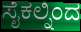
ಸೈಕಲ್ನಿಂದ